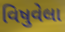
વિષુવેલા